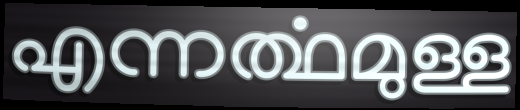
എന്നൎത്ഥമുള്ള